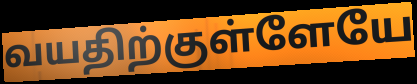
வயதிற்குள்ளேயே